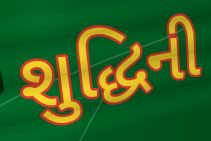
શુદ્ધિની